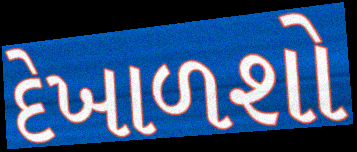
દેખાળશો